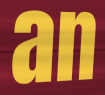
an